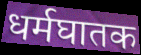
धर्मघातक